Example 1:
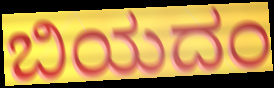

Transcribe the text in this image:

ಬಿಯದಂ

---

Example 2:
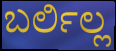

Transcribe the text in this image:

ಬರ್ಲಿಲ್ಲ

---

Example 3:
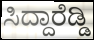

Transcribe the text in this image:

ಸಿದ್ದಾರೆಡ್ಡಿ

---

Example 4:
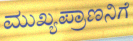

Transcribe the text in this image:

ಮುಖ್ಯಪ್ರಾಣನಿಗೆ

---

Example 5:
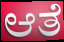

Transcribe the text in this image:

ಆತೆ